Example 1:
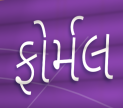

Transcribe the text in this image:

ફોર્મલ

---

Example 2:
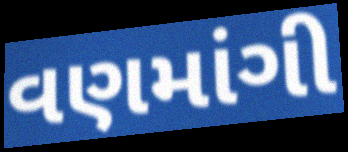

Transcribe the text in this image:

વણમાંગી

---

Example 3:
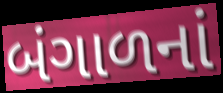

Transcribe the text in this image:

બંગાળનાં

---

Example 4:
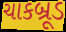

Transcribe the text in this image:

ચાકબ્રૂડ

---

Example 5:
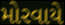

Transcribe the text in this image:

મોરવાયે